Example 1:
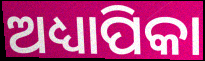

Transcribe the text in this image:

ଅଧ୍ୟାପିକା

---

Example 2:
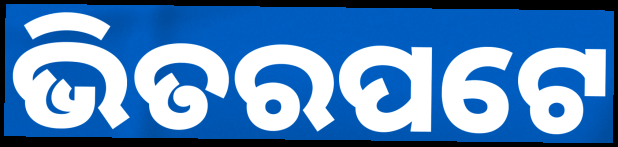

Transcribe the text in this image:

ଭିତରପଟେ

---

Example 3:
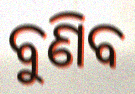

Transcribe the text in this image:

ବୁଣିବ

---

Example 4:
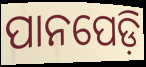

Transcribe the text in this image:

ପାନପେଡ଼ି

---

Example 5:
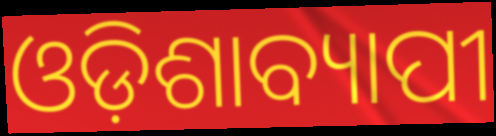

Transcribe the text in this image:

ଓଡ଼ିଶାବ୍ୟାପୀ